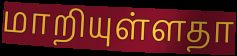
மாறியுள்ளதா